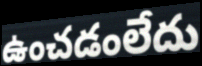
ఉంచడంలేదు